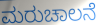
ಮರುಚಾಲನೆ